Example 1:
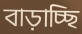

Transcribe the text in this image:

বাড়াচ্ছি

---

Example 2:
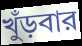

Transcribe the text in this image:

খুঁড়বার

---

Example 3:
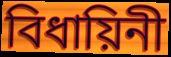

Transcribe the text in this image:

বিধায়িনী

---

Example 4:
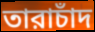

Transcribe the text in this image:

তারাচাঁদ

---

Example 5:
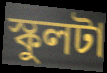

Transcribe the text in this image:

স্কুলটা